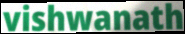
vishwanath